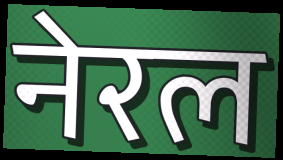
नेरल